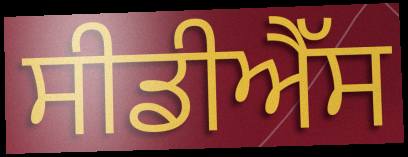
ਸੀਡੀਐੱਸ